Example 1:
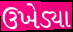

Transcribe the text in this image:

ઉખેડ્યા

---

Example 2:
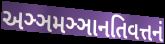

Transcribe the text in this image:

અઞ્ઞમઞ્ઞાનતિવત્તનં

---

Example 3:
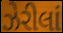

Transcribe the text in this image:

ઝેરીલાં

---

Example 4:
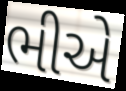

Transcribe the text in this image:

ભીએ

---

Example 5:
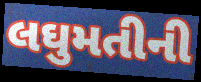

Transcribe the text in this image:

લઘુમતીની